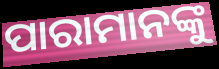
ପାରାମାନଙ୍କୁ